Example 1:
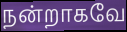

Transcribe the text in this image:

நன்றாகவே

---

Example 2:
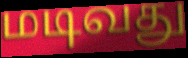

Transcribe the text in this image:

மடிவது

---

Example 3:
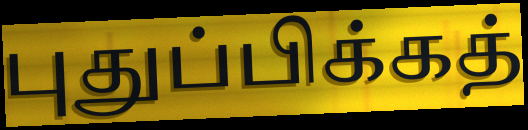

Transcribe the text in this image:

புதுப்பிக்கத்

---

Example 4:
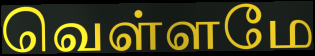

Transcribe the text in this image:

வெள்ளமே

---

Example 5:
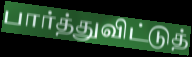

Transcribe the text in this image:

பார்த்துவிட்டுத்